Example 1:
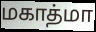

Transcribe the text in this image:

மகாத்மா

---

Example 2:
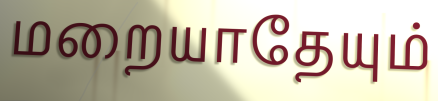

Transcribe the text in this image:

மறையாதேயும்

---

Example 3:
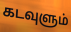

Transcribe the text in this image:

கடவுளும்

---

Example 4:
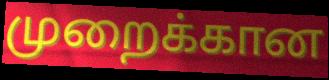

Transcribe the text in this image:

முறைக்கான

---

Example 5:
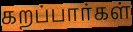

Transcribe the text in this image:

கறப்பார்கள்